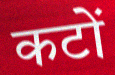
कटों